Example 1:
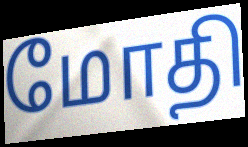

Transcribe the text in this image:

மோதி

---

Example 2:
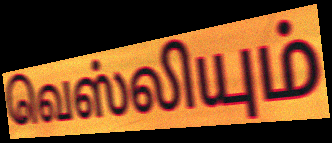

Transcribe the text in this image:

வெஸ்லியும்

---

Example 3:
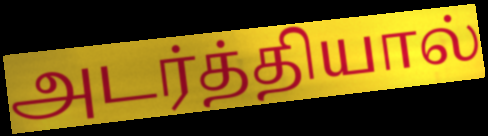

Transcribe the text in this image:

அடர்த்தியால்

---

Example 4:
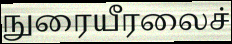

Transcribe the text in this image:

நுரையீரலைச்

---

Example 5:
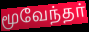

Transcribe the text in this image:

மூவேந்தர்